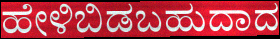
ಹೇಳಿಬಿಡಬಹುದಾದ